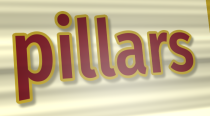
pillars